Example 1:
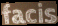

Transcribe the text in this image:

facis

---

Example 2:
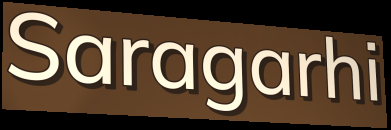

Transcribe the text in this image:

Saragarhi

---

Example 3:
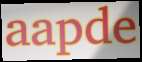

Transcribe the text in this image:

aapde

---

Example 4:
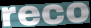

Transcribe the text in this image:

reco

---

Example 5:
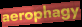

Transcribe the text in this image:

aerophagy